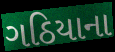
ગઠિયાના